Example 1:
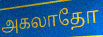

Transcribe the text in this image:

அகலாதோ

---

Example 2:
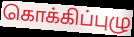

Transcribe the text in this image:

கொக்கிப்புழு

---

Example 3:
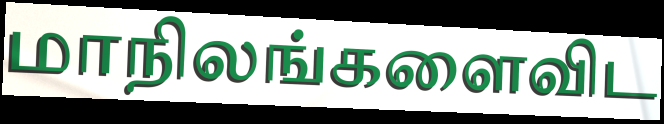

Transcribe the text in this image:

மாநிலங்களைவிட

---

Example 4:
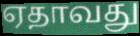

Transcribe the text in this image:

ஏதாவது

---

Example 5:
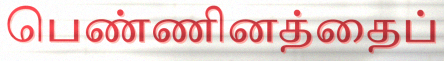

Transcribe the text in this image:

பெண்ணினத்தைப்